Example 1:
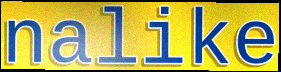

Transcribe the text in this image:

nalike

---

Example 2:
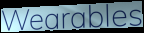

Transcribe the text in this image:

Wearables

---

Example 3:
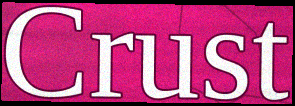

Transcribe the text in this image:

Crust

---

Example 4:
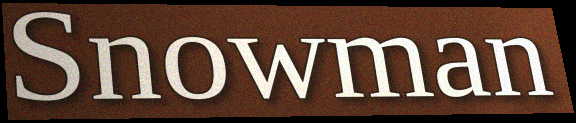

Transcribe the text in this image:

Snowman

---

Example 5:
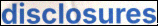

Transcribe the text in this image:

disclosures